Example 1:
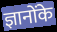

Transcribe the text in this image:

ज्ञानोंके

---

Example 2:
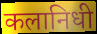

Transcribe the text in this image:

कलानिधी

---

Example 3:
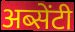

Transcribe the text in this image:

अब्सेंटी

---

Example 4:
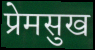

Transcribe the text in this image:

प्रेमसुख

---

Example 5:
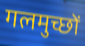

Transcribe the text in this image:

गलमुच्छों